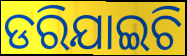
ଡରିଯାଇଚି